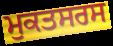
ਮੁਕਤਸਰਸ